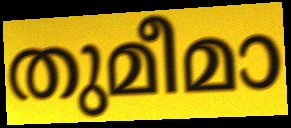
തുമീമാ